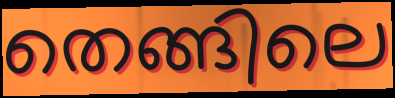
തെങ്ങിലെ